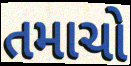
તમાચો